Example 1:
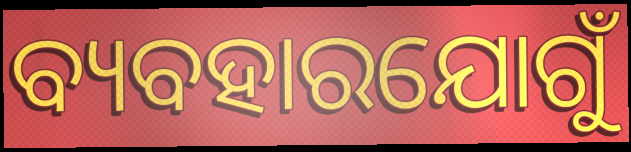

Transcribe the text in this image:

ବ୍ୟବହାରଯୋଗୁଁ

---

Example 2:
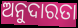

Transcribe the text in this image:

ଅନୁଦାରତା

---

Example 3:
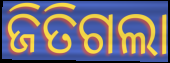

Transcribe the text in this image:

ଜିତିଗଲା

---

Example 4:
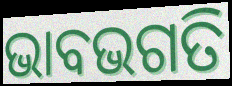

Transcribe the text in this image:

ଭାବଭଗତି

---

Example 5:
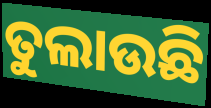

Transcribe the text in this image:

ତୁଲାଉଛି